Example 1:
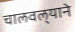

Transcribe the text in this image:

चालवल्याने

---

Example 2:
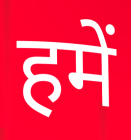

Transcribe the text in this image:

हमें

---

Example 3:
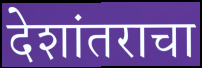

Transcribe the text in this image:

देशांतराचा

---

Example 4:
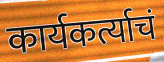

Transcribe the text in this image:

कार्यकर्त्याचं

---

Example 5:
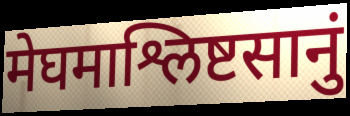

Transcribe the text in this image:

मेघमाश्लिष्टसानुं